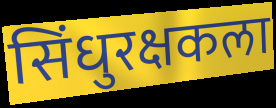
सिंधुरक्षकला